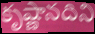
కృష్ణానదిని